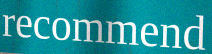
recommend